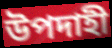
উপদাহী